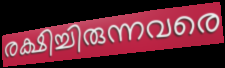
രക്ഷിച്ചിരുന്നവരെ